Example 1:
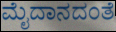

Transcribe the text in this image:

ಮೈದಾನದಂತೆ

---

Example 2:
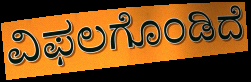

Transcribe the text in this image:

ವಿಫಲಗೊಂಡಿದೆ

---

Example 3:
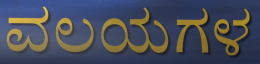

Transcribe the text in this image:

ವಲಯಗಳ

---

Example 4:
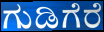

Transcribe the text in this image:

ಗುಡಿಗೆರೆ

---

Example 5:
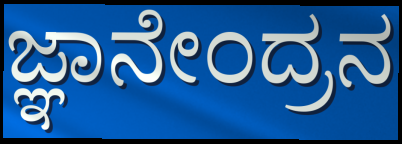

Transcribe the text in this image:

ಜ್ಞಾನೇಂದ್ರನ